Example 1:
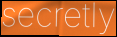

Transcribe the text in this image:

secretly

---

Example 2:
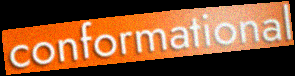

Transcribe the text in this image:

conformational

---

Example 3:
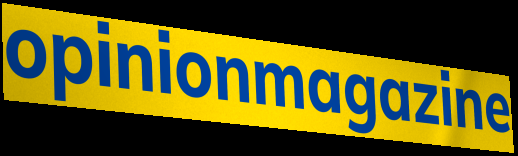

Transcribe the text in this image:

opinionmagazine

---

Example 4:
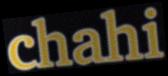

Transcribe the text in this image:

chahi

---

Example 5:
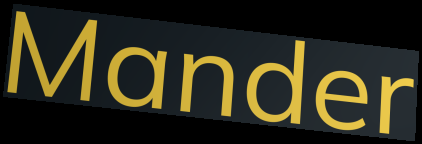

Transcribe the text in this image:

Mander